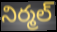
నిర్మల్